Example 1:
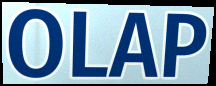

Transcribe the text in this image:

OLAP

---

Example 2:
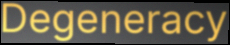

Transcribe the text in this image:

Degeneracy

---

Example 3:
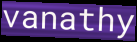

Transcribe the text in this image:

vanathy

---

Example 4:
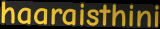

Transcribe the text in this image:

haaraisthini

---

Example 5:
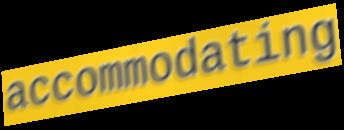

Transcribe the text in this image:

accommodating